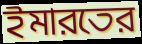
ইমারতের